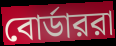
বোর্ডাররা